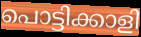
പൊട്ടിക്കാളി